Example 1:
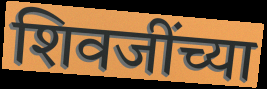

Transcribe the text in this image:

शिवजींच्या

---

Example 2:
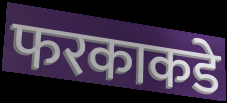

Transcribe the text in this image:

फरकाकडे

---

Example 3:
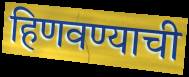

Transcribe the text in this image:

हिणवण्याची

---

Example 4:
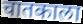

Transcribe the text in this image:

चातकाला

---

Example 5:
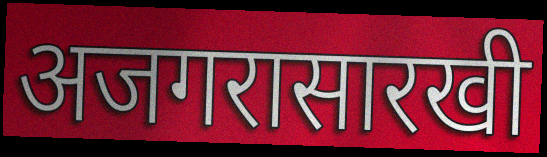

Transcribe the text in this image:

अजगरासारखी